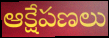
ఆక్షేపణలు